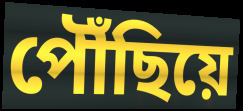
পৌঁছিয়ে